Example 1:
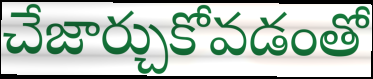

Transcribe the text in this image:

చేజార్చుకోవడంతో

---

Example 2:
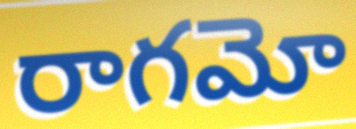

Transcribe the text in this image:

రాగమో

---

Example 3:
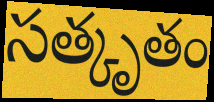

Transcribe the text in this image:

సత్కృతం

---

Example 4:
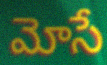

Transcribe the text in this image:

మోసే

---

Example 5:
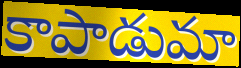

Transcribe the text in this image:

కాపాడుమా